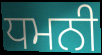
ਧਮਨੀ